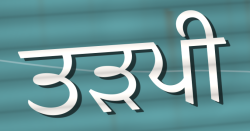
ਤੜਪੀ